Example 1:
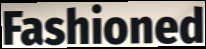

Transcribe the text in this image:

Fashioned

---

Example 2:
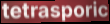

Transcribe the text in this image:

tetrasporic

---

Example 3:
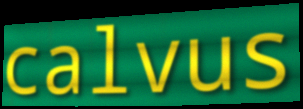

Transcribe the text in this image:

calvus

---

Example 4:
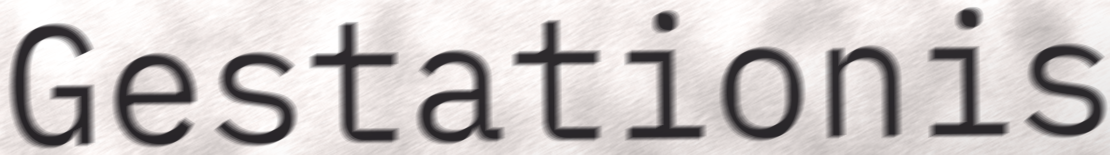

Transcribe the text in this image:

Gestationis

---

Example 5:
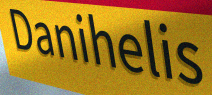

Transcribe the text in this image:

Danihelis